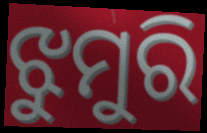
ଝୁମୁରି